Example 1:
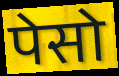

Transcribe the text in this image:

पेसो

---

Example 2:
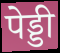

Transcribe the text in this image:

पेड्डी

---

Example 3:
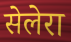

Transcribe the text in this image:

सेलेरा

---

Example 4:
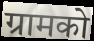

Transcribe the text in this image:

ग्रामको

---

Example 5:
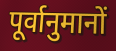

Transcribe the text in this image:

पूर्वानुमानों